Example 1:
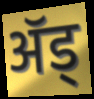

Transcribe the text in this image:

ॲड्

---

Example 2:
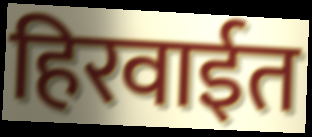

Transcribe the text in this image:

हिरवाईत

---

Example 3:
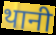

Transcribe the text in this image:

थानी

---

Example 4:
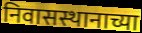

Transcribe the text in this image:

निवासस्थानाच्या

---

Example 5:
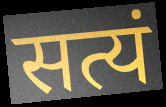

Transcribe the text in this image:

सत्यं